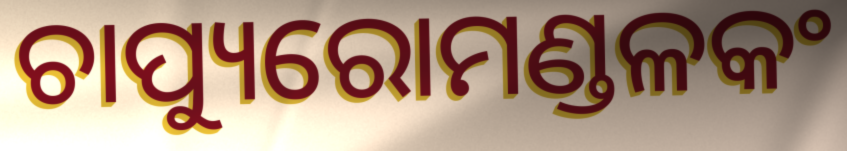
ଚାପ୍ୟୁରୋମଣ୍ଡଳକଂ